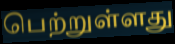
பெற்றுள்ளது